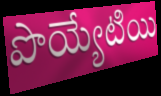
పొయ్యేటియి